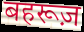
बहरूज़